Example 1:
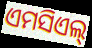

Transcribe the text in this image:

ଏମସିଏଲ୍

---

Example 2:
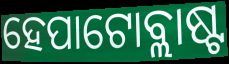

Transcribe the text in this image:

ହେପାଟୋବ୍ଲାଷ୍ଟ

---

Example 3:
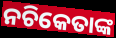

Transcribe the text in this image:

ନଚିକେତାଙ୍କ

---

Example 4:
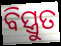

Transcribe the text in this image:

ବିସ୍ତ୍ରୁତ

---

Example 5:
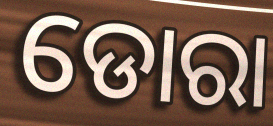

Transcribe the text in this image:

ଡୋରା